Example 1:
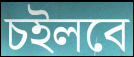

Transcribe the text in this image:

চইলবে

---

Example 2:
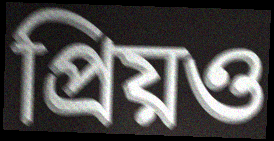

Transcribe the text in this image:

প্রিয়ও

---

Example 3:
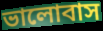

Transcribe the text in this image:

ভালোবাস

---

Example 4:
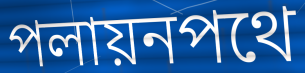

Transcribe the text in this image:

পলায়নপথে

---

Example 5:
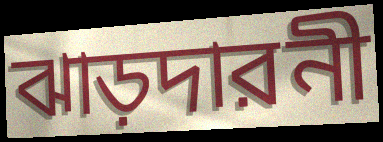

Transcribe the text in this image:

ঝাড়দারনী